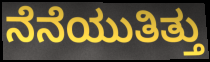
ನೆನೆಯುತಿತ್ತು